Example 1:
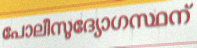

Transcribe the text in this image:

പോലീസുദ്യോഗസ്ഥന്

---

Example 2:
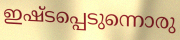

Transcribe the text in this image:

ഇഷ്ടപ്പെടുന്നൊരു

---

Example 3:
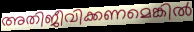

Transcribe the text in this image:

അതിജീവിക്കണമെങ്കിൽ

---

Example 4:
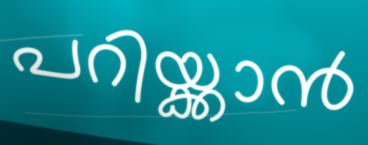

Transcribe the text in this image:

പറിയ്ക്കാൻ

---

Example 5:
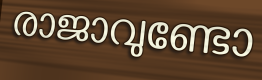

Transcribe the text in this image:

രാജാവുണ്ടോ